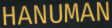
HANUMAN